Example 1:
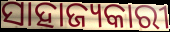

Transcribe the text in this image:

ସାହାଜ୍ଯକାରୀ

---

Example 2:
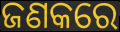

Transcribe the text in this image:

ଜଣକରେ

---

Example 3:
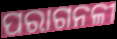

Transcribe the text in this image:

ପରାଗନଳୀ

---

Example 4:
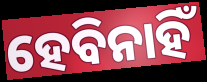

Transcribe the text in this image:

ହେବିନାହିଁ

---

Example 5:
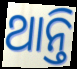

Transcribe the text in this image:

ଥାନ୍ତି